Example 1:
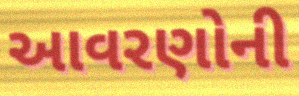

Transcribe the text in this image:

આવરણોની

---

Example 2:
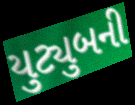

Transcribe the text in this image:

યુટ્યુબની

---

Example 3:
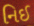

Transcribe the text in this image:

નિઈ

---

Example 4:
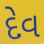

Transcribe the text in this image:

દેવ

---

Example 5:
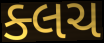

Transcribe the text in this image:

ક્લચ